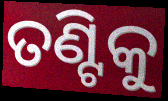
ତଣ୍ଟିକୁ